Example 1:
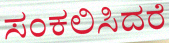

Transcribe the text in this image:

ಸಂಕಲಿಸಿದರೆ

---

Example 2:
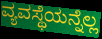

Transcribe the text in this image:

ವ್ಯವಸ್ಥೆಯನ್ನೆಲ್ಲ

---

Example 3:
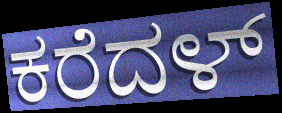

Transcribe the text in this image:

ಕರೆದಳ್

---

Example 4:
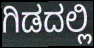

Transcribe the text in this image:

ಗಿಡದಲ್ಲಿ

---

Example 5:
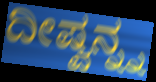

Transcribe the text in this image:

ದೀಷ್ವನ್ನ್ನ